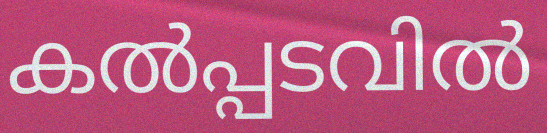
കൽപ്പടവിൽ